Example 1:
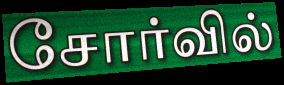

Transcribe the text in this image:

சோர்வில்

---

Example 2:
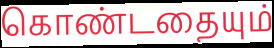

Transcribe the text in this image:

கொண்டதையும்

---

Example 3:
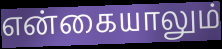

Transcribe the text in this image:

என்கையாலும்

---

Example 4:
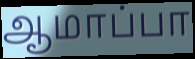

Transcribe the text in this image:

ஆமாப்பா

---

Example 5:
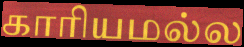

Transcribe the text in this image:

காரியமல்ல